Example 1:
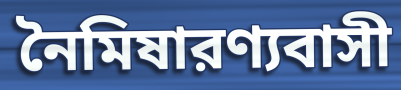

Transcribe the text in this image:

নৈমিষারণ্যবাসী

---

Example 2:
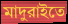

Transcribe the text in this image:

মাদুরাইতে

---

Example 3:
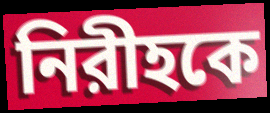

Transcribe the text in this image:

নিরীহকে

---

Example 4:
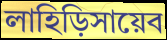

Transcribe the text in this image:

লাহিড়িসায়েব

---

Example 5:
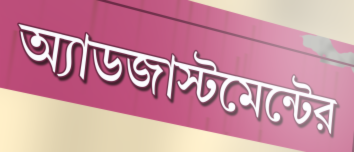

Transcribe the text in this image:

অ্যাডজাস্টমেন্টের